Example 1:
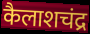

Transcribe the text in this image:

कैलाशचंद्र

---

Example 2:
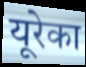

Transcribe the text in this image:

यूरेका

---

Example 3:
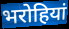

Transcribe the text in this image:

भरोहियां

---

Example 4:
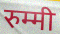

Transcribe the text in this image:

रुम्मी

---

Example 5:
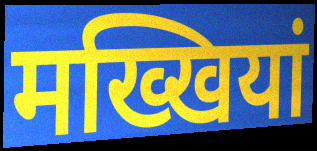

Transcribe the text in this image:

मख्खियां